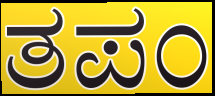
ತಪಂ